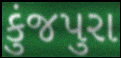
કુંજપુરા